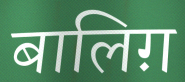
बालिग़